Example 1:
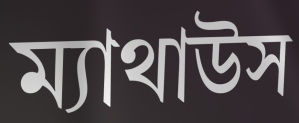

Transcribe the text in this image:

ম্যাথাউস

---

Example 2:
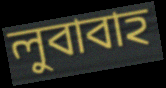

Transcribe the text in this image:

লুবাবাহ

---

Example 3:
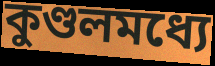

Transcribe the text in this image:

কুণ্ডলমধ্যে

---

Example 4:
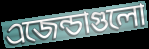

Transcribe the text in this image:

এজেন্ডাগুলো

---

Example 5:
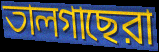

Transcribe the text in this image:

তালগাছেরা